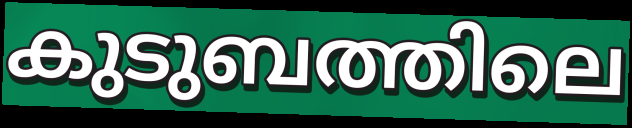
കുടുബത്തിലെ